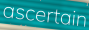
ascertain